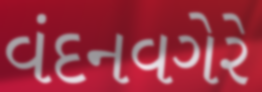
વંદનવગેરે